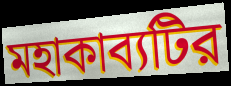
মহাকাব্যটির